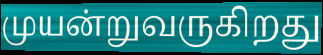
முயன்றுவருகிறது